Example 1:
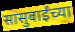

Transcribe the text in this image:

सासुबाईंच्या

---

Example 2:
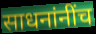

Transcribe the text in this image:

साधनांनींच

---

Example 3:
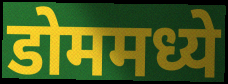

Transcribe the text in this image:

डोममध्ये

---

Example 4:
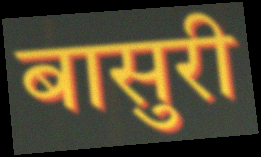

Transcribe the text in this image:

बासुरी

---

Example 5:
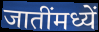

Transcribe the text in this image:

जातींमध्यें